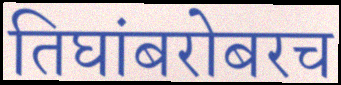
तिघांबरोबरच